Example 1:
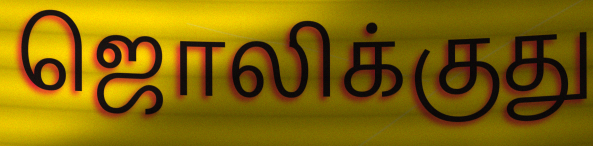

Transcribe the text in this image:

ஜொலிக்குது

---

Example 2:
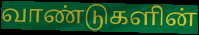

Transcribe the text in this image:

வாண்டுகளின்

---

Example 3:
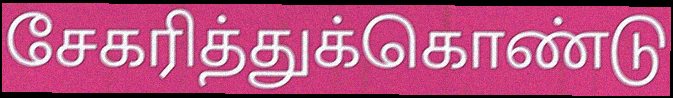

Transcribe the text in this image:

சேகரித்துக்கொண்டு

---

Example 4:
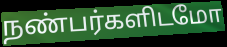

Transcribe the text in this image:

நண்பர்களிடமோ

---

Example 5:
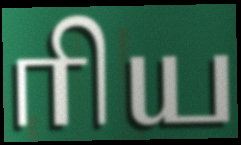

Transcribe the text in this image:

ரிய